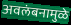
अवलंबनामुळे